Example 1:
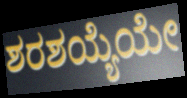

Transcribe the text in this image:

ಶರಶಯ್ಯೆಯೇ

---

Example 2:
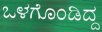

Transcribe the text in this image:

ಒಳಗೊಂಡಿದ್ದ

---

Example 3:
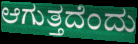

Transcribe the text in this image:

ಆಗುತ್ತದೆಂದು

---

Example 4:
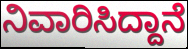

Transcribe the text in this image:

ನಿವಾರಿಸಿದ್ದಾನೆ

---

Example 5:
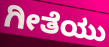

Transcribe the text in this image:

ಗೀತೆಯು